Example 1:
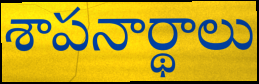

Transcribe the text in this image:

శాపనార్థాలు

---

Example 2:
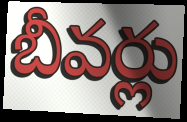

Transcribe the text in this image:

బీవర్లు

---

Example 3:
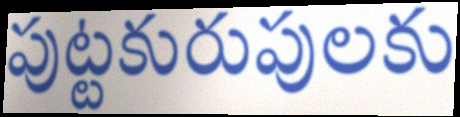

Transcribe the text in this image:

పుట్టకురుపులకు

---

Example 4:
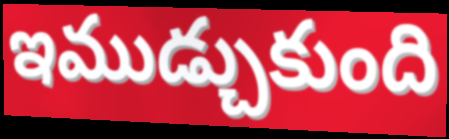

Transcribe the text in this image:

ఇముడ్చుకుంది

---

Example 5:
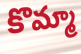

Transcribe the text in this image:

కొమ్మా